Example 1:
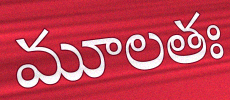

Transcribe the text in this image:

మూలతః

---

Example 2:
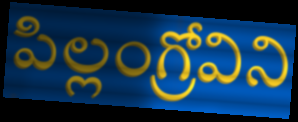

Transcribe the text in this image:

పిల్లంగ్రోవిని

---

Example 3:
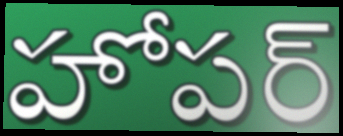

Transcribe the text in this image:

హోపర్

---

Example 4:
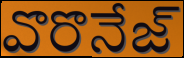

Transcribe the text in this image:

వొరొనేజ్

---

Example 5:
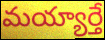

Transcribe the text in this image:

మయ్యార్తే